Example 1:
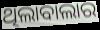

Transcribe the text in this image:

ଥିଲାବାଲାର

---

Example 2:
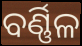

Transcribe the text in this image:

ବର୍ଣ୍ଣିଳ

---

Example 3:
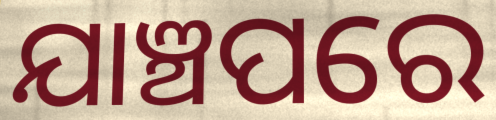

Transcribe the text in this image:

ଯାଞ୍ଚପରେ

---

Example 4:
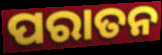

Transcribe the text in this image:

ପରାତନ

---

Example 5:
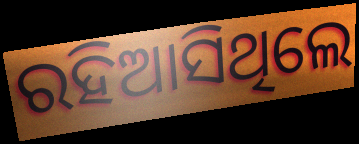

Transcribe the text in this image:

ରହିଆସିଥିଲେ